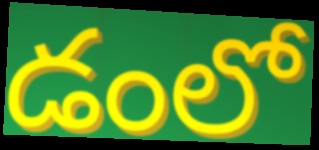
డంలో